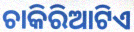
ଚାକିରିଆଟିଏ